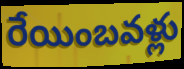
రేయింబవళ్లు